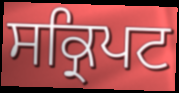
ਸਕ੍ਰਿਪਟ